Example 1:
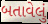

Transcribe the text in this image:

બતાવેલું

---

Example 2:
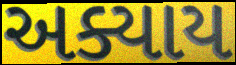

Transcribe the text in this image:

અક્યાય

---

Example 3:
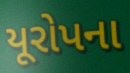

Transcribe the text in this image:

યૂરોપના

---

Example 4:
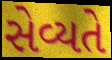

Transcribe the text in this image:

સેવ્યતે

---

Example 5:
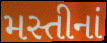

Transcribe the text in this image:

મસ્તીનાં